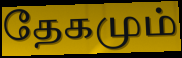
தேகமும்